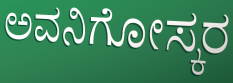
ಅವನಿಗೋಸ್ಕರ